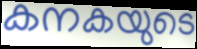
കനകയുടെ